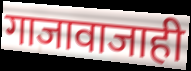
गाजावाजाही